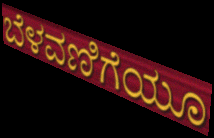
ಬೆಳವಣಿಗೆಯೂ